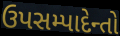
ઉપસમ્પાદેન્તો